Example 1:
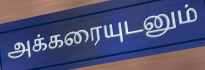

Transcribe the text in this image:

அக்கரையுடனும்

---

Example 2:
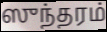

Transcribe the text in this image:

ஸுந்தரம்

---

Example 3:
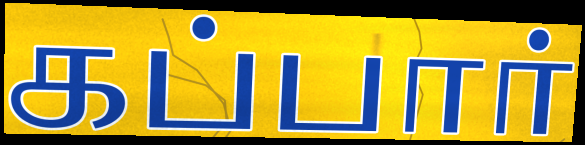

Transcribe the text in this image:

கப்பார்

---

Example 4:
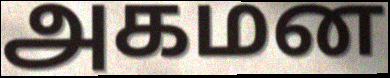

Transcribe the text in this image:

அகமன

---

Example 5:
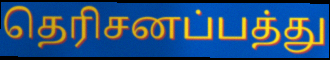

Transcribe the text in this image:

தெரிசனப்பத்து